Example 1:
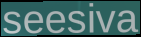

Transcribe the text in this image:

seesiva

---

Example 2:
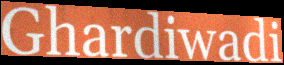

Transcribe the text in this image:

Ghardiwadi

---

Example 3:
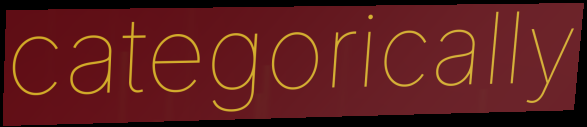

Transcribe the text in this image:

categorically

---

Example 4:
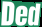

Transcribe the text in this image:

Ded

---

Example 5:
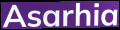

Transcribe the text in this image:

Asarhia